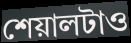
শেয়ালটাও